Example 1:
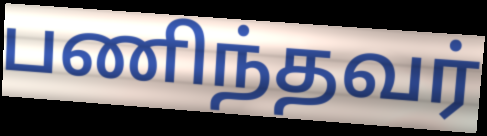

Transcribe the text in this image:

பணிந்தவர்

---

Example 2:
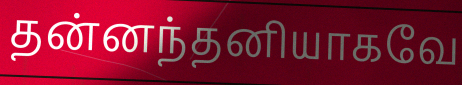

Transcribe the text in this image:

தன்னந்தனியாகவே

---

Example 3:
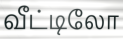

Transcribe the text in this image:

வீட்டிலோ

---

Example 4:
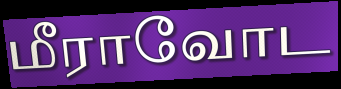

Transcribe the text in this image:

மீராவோட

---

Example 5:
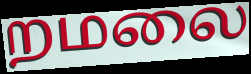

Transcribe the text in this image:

றமலை